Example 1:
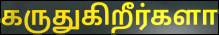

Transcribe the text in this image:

கருதுகிறீர்களா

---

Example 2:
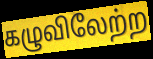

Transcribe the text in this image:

கழுவிலேற்ற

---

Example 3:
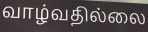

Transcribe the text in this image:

வாழ்வதில்லை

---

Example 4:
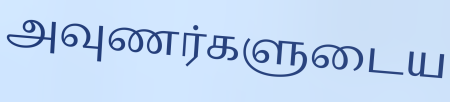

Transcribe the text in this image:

அவுணர்களுடைய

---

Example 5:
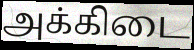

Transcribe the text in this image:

அக்கிடை